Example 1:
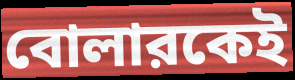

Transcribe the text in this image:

বোলারকেই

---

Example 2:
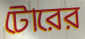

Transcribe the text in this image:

টোরের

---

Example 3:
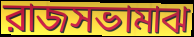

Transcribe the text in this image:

রাজসভামাঝ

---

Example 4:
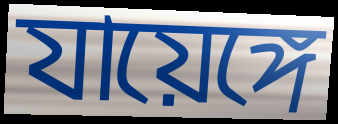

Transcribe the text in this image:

যায়েঙ্গে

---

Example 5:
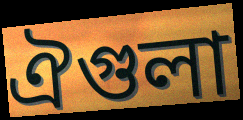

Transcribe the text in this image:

ঐগুলা